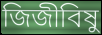
জিজীবিষু